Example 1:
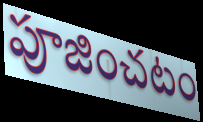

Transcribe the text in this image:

పూజించటం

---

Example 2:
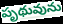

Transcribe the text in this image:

పృథువును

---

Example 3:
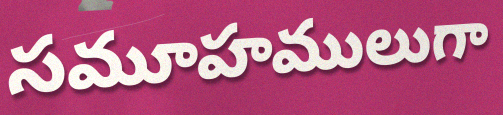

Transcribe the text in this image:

సమూహములుగా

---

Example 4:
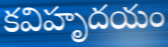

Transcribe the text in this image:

కవిహృదయం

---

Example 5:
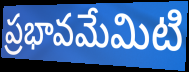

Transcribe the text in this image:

ప్రభావమేమిటి